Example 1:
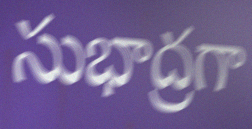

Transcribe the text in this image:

సుభాద్రగా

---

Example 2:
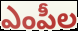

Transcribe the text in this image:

ఎంపీల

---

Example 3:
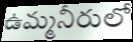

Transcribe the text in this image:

ఉమ్మనీరులో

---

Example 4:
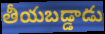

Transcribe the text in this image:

తీయబడ్డాడు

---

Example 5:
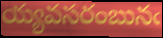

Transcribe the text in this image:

య్యవసరంబునఁ